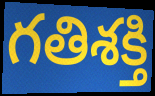
గతిశక్తి